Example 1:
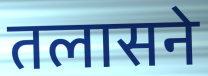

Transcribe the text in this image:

तलासने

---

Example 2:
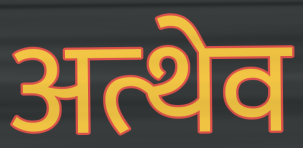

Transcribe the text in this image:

अत्थेव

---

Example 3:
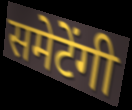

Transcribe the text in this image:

समेटेंगी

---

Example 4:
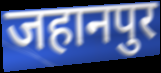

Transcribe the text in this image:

जहानपुर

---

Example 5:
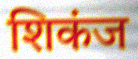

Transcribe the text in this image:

शिकंज